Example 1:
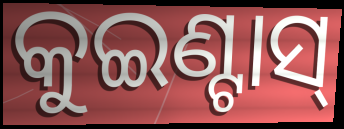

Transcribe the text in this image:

କୁଇଣ୍ଟାସ୍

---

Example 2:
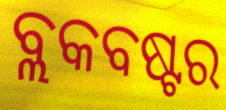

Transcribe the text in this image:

ବ୍ଲକବଷ୍ଟର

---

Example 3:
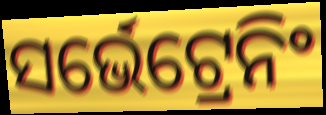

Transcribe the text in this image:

ସର୍ଭେଟ୍ରେନିଂ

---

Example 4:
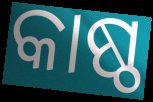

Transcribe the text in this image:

କାଷ୍ଠ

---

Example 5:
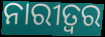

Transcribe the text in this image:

ନାରୀତ୍ଵର